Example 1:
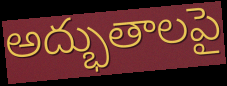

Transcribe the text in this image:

అద్భుతాలపై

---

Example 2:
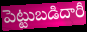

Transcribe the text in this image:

పెట్టుబడిదారీ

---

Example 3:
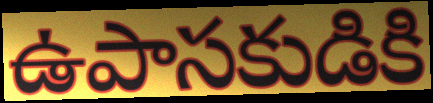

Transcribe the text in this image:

ఉపాసకుడికి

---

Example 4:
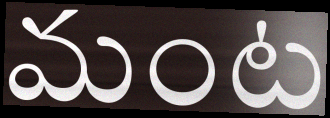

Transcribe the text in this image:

మంట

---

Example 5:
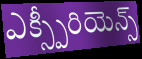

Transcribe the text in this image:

ఎక్స్పీరియెన్స్